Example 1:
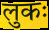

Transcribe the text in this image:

लुकः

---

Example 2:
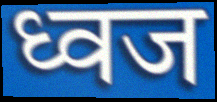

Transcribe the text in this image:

ध्वज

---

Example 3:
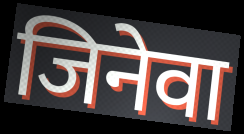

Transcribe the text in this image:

जिनेवा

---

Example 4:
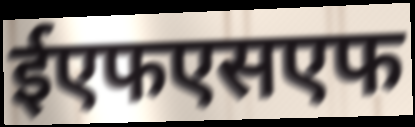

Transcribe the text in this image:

ईएफएसएफ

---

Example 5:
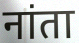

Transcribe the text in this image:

नांता